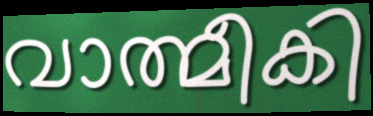
വാത്മീകി